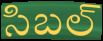
సిబల్